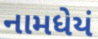
નામધેયં